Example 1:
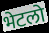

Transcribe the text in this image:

भेटलो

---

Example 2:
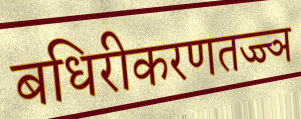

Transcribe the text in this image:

बधिरीकरणतज्ज्ञ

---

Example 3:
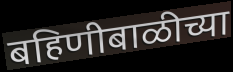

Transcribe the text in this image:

बहिणीबाळीच्या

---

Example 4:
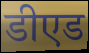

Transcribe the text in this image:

डीएड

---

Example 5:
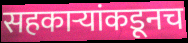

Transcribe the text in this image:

सहकार्‍यांकडूनच